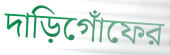
দাড়িগোঁফের